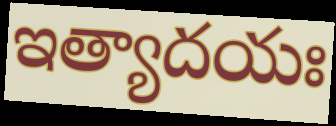
ఇత్యాదయః